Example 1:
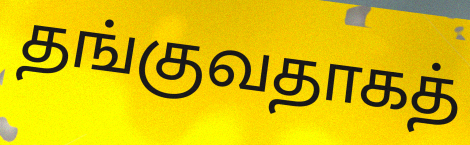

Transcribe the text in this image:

தங்குவதாகத்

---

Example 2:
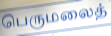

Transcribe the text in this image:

பெருமலைத்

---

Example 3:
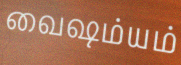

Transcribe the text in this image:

வைஷம்யம்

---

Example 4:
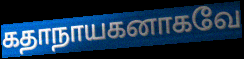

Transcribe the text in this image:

கதாநாயகனாகவே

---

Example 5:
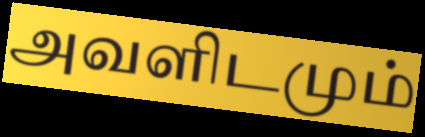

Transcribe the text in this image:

அவளிடமும்